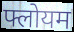
फ्लोयम